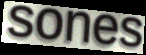
sones